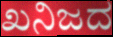
ಖನಿಜದ